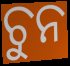
ଚୁନ